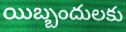
యిబ్బందులకు